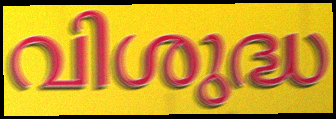
വിശുദ്ധ